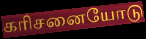
கரிசனையோடு